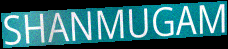
SHANMUGAM